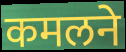
कमलने